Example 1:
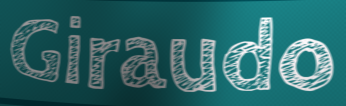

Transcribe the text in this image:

Giraudo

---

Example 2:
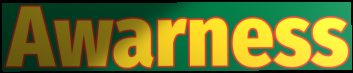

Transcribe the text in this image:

Awarness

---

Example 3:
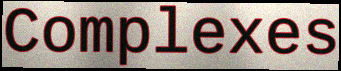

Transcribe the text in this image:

Complexes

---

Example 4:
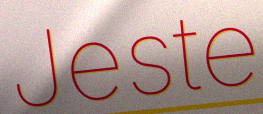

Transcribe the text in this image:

Jeste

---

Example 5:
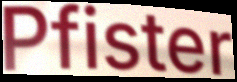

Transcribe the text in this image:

Pfister